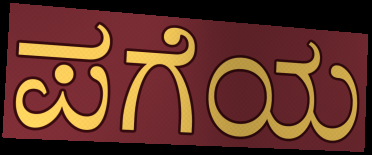
ಪಗೆಯ